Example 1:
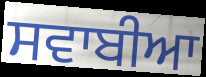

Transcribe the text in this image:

ਸਵਾਬੀਆ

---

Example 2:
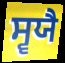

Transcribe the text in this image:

ਸ੍ਵਯੈ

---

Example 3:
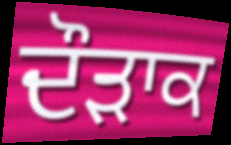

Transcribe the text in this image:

ਦੌੜਾਕ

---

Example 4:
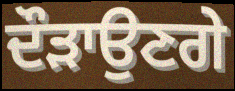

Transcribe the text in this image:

ਦੌੜਾਉਣਗੇ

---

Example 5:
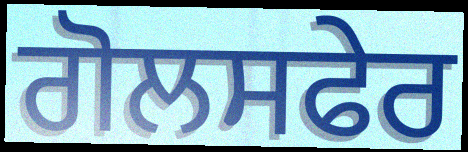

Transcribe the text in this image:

ਗੋਲਸਫੇਰ